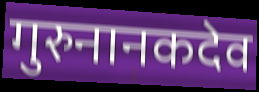
गुरुनानकदेव